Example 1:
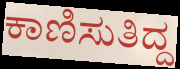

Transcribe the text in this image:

ಕಾಣಿಸುತಿದ್ದ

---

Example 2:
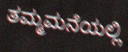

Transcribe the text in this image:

ತಮ್ಮಮನೆಯಲ್ಲಿ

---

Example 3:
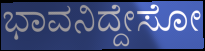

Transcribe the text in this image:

ಭಾವನಿದ್ದೇಸೋ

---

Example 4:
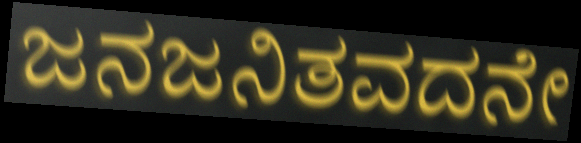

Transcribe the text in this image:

ಜನಜನಿತವದನೇ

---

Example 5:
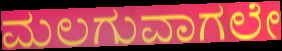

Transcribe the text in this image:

ಮಲಗುವಾಗಲೇ